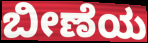
ಬೀಣೆಯ